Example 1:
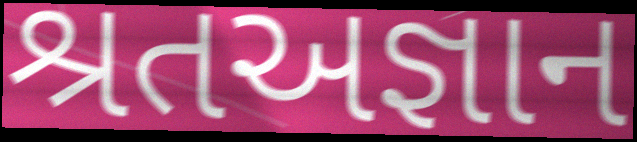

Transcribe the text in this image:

શ્રતઅજ્ઞાન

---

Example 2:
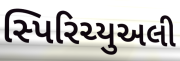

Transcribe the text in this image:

સ્પિરિચ્યુઅલી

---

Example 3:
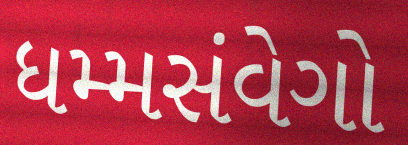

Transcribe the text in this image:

ધમ્મસંવેગો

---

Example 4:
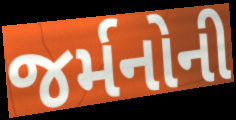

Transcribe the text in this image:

જર્મનોની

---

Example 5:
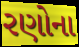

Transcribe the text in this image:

રણોના